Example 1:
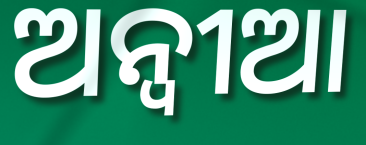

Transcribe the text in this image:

ଅନ୍ବୀଆ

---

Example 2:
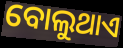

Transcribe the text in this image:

ବୋଲୁଥାଏ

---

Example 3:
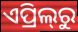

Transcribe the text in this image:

ଏପ୍ରିଲ୍‌ରୁ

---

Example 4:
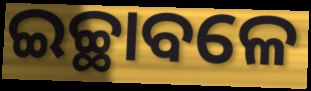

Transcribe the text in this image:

ଇଚ୍ଛାବଳେ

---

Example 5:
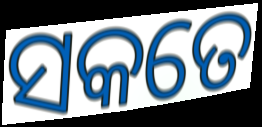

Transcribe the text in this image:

ସକତେ